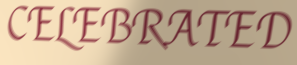
CELEBRATED